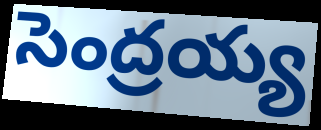
సెంద్రయ్య